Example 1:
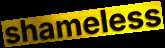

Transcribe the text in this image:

shameless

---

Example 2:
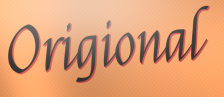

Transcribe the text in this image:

Origional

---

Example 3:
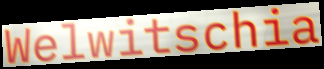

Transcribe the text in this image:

Welwitschia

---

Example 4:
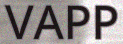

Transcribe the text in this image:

VAPP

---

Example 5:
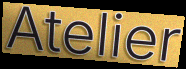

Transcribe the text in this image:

Atelier